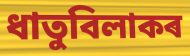
ধাতুবিলাকৰ